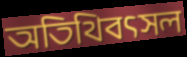
অতিথিবৎসল